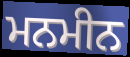
ਮਨਮੀਨ